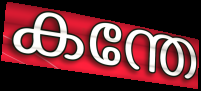
കന്തേ